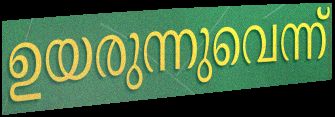
ഉയരുന്നുവെന്ന്